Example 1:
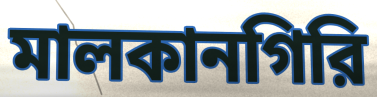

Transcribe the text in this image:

মালকানগিরি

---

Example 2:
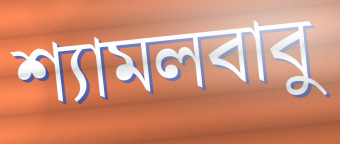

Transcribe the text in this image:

শ্যামলবাবু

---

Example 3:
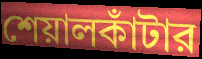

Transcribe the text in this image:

শেয়ালকাঁটার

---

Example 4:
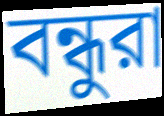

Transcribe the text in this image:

বন্ধুরা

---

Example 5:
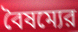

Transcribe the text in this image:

বৈষম্যের